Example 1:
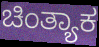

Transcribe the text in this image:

ಚಿಂತ್ಯಾಕ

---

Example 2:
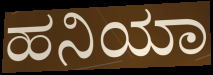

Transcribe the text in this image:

ಹನಿಯಾ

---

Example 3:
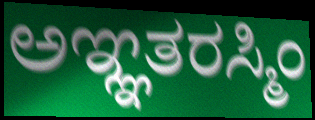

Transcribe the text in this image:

ಅಞ್ಞತರಸ್ಮಿಂ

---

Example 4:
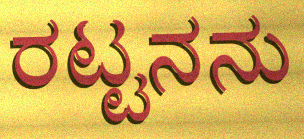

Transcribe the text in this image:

ರಟ್ಟನನು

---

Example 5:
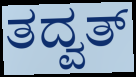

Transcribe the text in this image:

ತದ್ವತ್